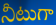
నీటుగా